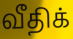
வீதிக்